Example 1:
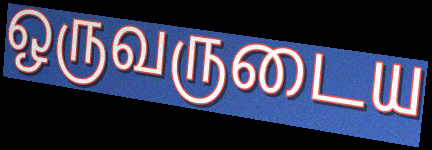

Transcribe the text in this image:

ஒருவருடைய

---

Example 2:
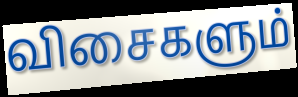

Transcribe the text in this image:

விசைகளும்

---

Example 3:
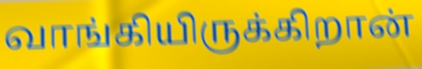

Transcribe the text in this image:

வாங்கியிருக்கிறான்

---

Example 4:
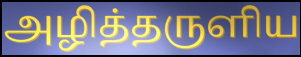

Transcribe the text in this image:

அழித்தருளிய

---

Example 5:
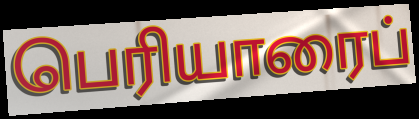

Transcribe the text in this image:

பெரியாரைப்